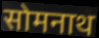
सोमनाथ